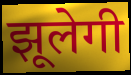
झूलेगी